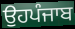
ਉਹਪੰਜਾਬ